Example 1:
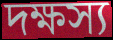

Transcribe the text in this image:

দক্ষস্য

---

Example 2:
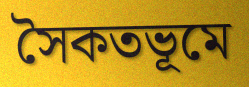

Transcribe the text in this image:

সৈকতভূমে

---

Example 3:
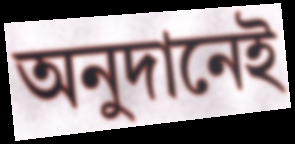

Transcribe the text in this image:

অনুদানেই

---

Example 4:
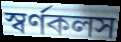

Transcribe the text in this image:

স্বর্ণকলস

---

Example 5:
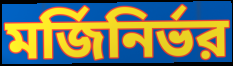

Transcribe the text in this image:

মর্জিনির্ভর